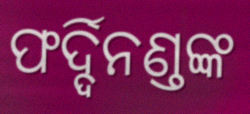
ଫର୍ଦ୍ଦିନଣ୍ଡଙ୍କ